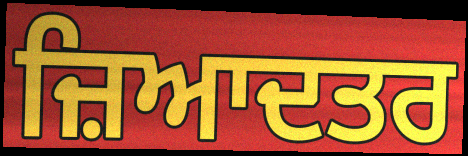
ਜ਼ਿਆਦਤਰ